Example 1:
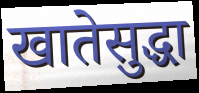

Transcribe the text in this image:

खातेसुद्धा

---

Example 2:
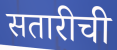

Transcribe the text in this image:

सतारीची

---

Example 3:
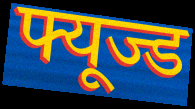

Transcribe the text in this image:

फ्यूज्ड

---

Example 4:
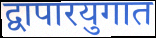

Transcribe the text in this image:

द्वापारयुगात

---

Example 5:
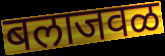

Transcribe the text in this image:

बलाजवळ